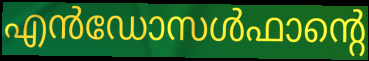
എൻഡോസൾഫാന്റെ